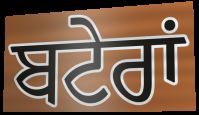
ਬਟੇਰਾਂ